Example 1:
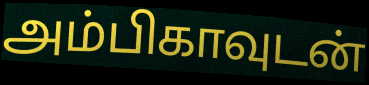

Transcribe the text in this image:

அம்பிகாவுடன்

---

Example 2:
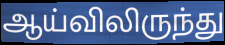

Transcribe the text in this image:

ஆய்விலிருந்து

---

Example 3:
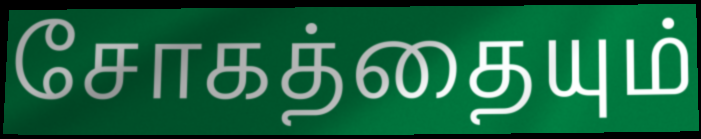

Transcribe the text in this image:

சோகத்தையும்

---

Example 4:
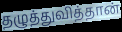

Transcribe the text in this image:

தழுத்துவித்தான்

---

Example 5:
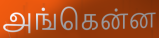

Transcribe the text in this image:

அங்கென்ன